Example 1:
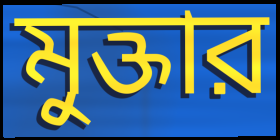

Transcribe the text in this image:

মুক্তার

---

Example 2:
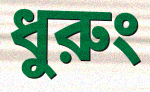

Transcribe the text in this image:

ধুরুং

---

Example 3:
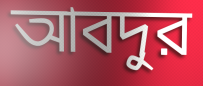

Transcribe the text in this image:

আবদুর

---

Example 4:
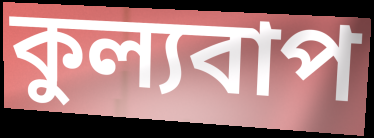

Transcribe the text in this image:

কুল্যবাপ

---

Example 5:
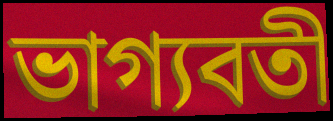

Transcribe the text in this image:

ভাগ্যবতী